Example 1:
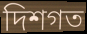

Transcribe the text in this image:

দিশগত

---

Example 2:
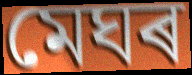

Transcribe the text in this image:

মেঘৰ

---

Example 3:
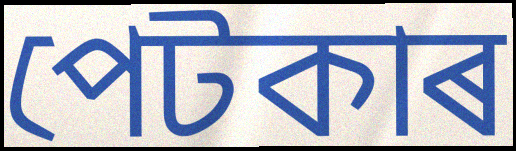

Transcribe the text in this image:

পেটকাৰ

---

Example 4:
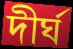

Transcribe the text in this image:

দীৰ্ঘ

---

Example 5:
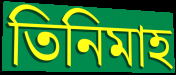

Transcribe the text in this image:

তিনিমাহ